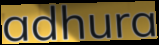
adhura